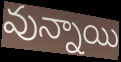
వున్నాయి